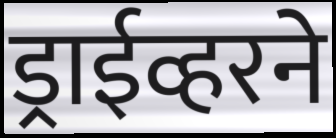
ड्राईव्हरने